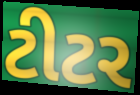
ટીટર